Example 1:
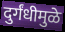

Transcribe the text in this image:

दुर्गंधीमुळे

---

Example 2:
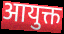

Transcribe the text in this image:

आयुक्त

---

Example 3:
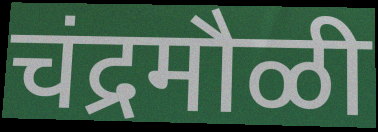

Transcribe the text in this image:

चंद्रमौळी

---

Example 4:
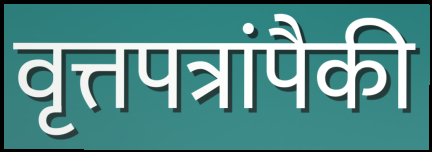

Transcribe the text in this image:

वृत्तपत्रांपैकी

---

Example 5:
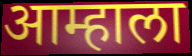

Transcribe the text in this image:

आम्हाला